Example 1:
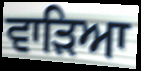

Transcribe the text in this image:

ਵਾੜਿਆ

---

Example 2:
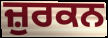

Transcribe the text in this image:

ਜ਼ੁਰਕਨ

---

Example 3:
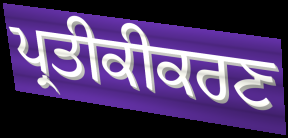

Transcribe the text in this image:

ਪ੍ਰਤੀਕੀਕਰਣ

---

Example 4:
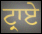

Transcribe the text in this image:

ਟ੍ਰਾਏ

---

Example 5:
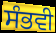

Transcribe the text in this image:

ਸੰਭਵੀ